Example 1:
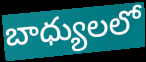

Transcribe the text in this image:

బాధ్యులలో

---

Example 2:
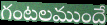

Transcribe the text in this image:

గంటలముందే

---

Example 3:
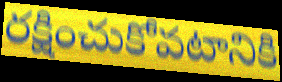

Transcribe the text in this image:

రక్షించుకోవటానికి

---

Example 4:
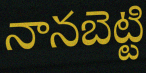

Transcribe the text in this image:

నానబెట్టి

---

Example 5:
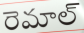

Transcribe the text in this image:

రెమాల్